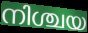
നിശ്ചയ